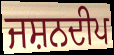
ਜਸ਼ਨਦੀਪ